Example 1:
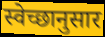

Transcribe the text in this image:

स्वेच्छानुसार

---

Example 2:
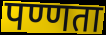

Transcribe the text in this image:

पण्णता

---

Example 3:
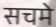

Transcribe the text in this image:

सचमे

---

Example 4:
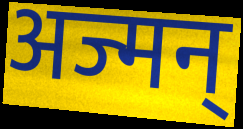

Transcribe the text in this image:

अज्मन्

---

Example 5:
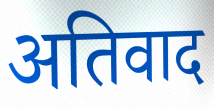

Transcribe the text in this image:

अतिवाद